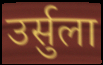
उर्सुला